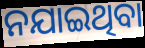
ନଯାଇଥିବା